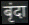
बृंदा